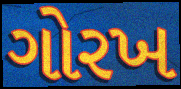
ગોરખ